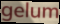
gelum